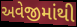
અવેજીમાંથી